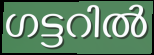
ഗട്ടറിൽ